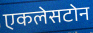
एकलेसटोन